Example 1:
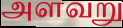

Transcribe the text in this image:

அளவறு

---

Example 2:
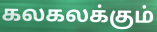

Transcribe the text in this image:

கலகலக்கும்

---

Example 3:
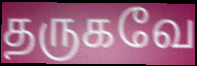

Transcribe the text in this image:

தருகவே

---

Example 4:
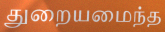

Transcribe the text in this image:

துறையமைந்த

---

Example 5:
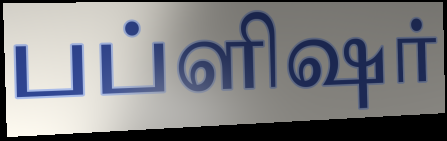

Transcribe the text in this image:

பப்ளிஷர்